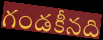
గండకీనది